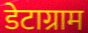
डेटाग्राम